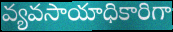
వ్యవసాయాధికారిగా